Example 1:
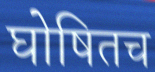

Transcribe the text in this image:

घोषितच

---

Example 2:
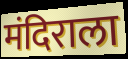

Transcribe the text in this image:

मंदिराला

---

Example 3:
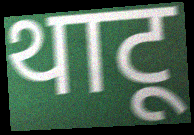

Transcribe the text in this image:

थाटू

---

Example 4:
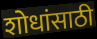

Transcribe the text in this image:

शोधांसाठी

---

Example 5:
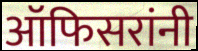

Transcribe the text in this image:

ऑफिसरांनी